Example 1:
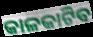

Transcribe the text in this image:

କାଳକାଟିବ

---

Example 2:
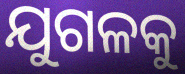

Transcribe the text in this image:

ଯୁଗଳକୁ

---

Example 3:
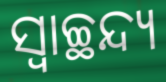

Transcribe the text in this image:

ସ୍ୱାଚ୍ଛନ୍ଦ୍ୟ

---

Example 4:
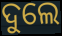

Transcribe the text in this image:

ଦୁଲେ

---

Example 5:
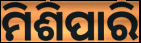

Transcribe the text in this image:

ମିଶିପାରି